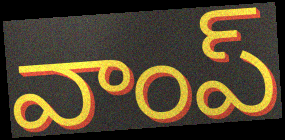
వాంప్